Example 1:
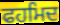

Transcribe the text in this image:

ਫਹਮਿਦ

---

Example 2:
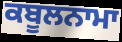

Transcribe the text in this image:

ਕਬੂਲਨਾਮਾ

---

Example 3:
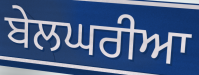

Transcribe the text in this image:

ਬੇਲਘਰੀਆ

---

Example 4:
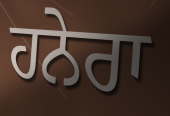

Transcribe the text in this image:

ਹਨੇਰਾ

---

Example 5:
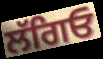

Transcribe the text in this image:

ਲੱਗਿਓ